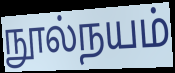
நூல்நயம்